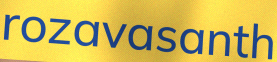
rozavasanth